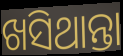
ଖସିଥାନ୍ତା